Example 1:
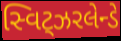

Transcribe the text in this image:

સ્વિટ્ઝરલેન્ડે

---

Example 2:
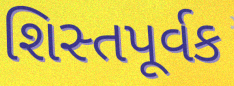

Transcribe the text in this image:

શિસ્તપૂર્વક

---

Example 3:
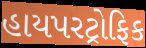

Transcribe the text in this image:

હાયપરટ્રોફિક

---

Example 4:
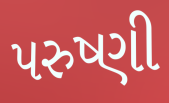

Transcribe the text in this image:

પરુષ્ણી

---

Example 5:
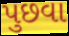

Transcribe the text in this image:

પુછવા